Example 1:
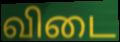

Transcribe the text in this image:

விடை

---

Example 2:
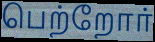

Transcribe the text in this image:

பெற்றோர்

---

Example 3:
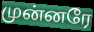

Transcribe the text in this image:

முன்னரே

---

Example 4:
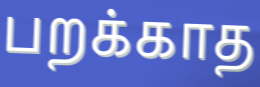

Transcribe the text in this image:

பறக்காத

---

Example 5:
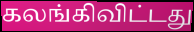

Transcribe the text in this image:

கலங்கிவிட்டது